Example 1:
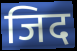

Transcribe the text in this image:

जिद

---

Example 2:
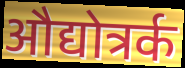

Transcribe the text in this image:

औद्योत्रर्क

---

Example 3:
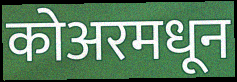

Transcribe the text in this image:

कोअरमधून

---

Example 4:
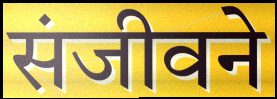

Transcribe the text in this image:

संजीवने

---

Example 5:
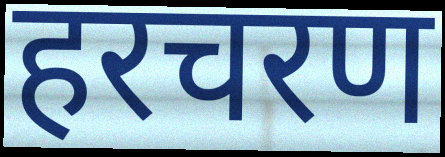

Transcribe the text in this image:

हरचरण